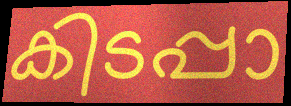
കിടപ്പാ